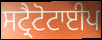
ਸਟ੍ਰੈਟੋਟਾਈਪ